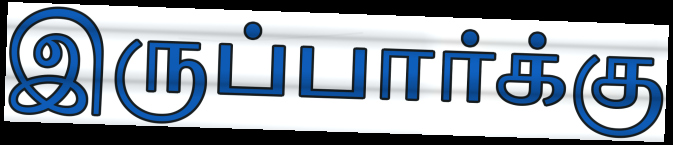
இருப்பார்க்கு